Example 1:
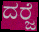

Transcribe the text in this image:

ದರ‍್ಜೆ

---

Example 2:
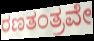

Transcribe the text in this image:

ರಣತಂತ್ರವೇ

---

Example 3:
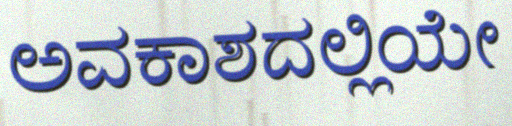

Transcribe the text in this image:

ಅವಕಾಶದಲ್ಲಿಯೇ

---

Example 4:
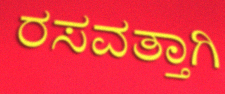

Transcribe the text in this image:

ರಸವತ್ತಾಗಿ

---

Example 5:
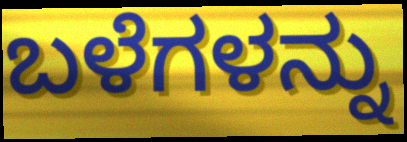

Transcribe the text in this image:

ಬಳೆಗಳನ್ನು